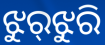
ଝୁର୍‌ଝୁରି